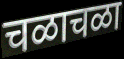
चळाचळा